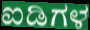
ಐಡಿಗಳ